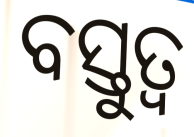
ବସ୍ତୁତ୍ୱ